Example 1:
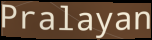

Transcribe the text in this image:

Pralayan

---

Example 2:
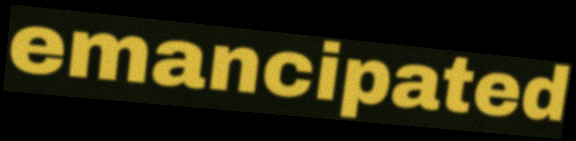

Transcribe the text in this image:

emancipated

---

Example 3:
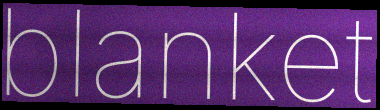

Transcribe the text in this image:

blanket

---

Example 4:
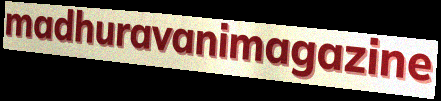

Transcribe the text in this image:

madhuravanimagazine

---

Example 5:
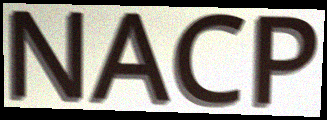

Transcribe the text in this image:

NACP